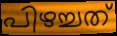
പിഴച്ചത്